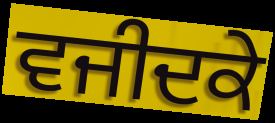
ਵਜੀਦਕੇ